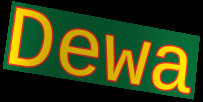
Dewa